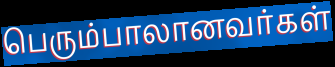
பெரும்பாலானவர்கள்